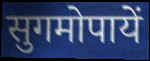
सुगमोपायें